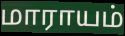
மாராயம்